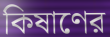
কিষাণের